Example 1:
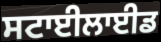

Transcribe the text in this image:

ਸਟਾਈਲਾਈਡ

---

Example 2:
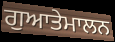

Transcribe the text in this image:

ਗੁਆਤੇਮਾਲਨ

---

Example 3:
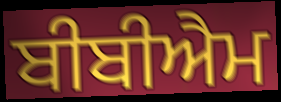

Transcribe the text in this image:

ਬੀਬੀਐਮ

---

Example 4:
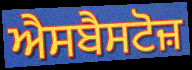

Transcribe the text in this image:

ਐਸਬੈਸਟੋਜ਼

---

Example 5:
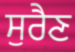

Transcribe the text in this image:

ਸੁਰੈਣ